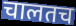
चालतच